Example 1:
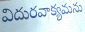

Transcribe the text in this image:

విదురవాక్యమను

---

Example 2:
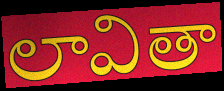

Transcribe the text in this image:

లావితా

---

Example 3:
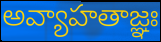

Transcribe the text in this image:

అవ్యాహతాజ్ఞః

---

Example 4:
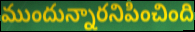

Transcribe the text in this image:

ముందున్నారనిపించింది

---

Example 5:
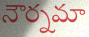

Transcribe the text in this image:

నౌర్నమా